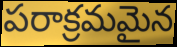
పరాక్రమమైన